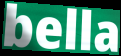
bella